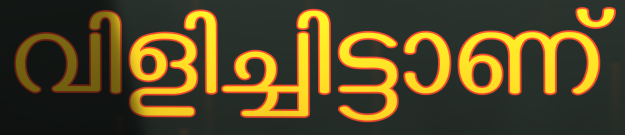
വിളിച്ചിട്ടാണ്